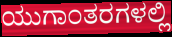
ಯುಗಾಂತರಗಳಲ್ಲಿ